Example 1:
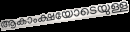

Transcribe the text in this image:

ആകാംക്ഷയോടെയുള്ള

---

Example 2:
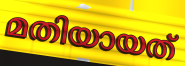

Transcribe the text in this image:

മതിയായത്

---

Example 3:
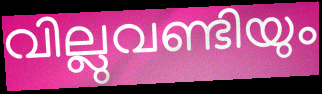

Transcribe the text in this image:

വില്ലുവണ്ടിയും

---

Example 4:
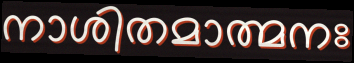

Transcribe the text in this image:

നാശിതമാത്മനഃ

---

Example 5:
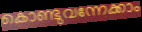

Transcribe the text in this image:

കൊണ്ടുവന്നേക്കാം